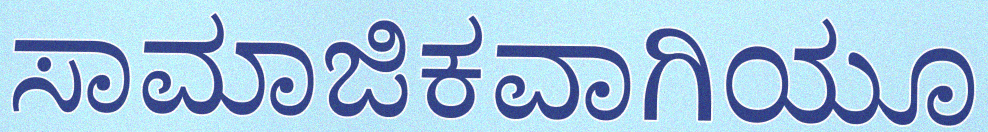
ಸಾಮಾಜಿಕವಾಗಿಯೂ